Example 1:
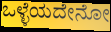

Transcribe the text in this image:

ಒಳ್ಳೆಯದೇನೋ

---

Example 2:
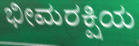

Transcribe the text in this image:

ಭೀಮರಕ್ಷಿಯ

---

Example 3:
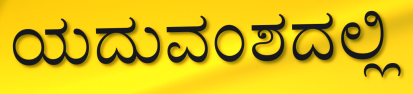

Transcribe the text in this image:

ಯದುವಂಶದಲ್ಲಿ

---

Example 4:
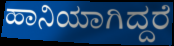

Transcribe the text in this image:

ಹಾನಿಯಾಗಿದ್ದರೆ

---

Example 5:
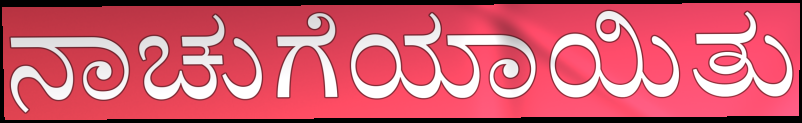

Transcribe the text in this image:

ನಾಚುಗೆಯಾಯಿತು